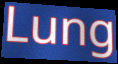
Lung